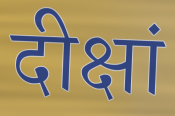
दीक्षां